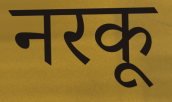
नरकू